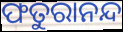
ଫତୁରାନନ୍ଦ